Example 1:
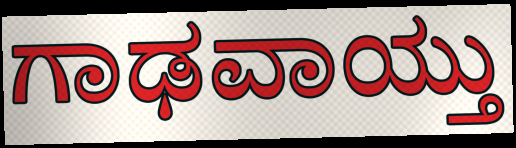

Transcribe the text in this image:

ಗಾಢವಾಯ್ತು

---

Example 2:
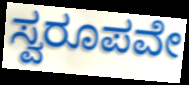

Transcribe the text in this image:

ಸ್ವರೂಪವೇ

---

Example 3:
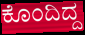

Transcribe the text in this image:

ಕೊಂದಿದ್ದ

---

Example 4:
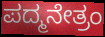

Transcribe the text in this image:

ಪದ್ಮನೇತ್ರಂ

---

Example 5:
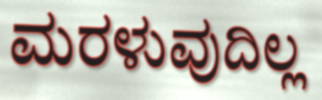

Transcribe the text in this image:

ಮರಳುವುದಿಲ್ಲ